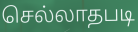
செல்லாதபடி